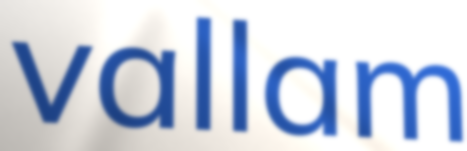
vallam